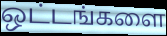
ஒட்டங்களை